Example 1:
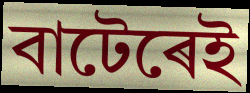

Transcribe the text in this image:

বাটেৰেই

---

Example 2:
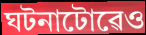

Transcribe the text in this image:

ঘটনাটোৱেও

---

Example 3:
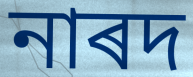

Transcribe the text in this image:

নাৰদ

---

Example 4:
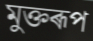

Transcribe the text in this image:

মুক্তৰূপ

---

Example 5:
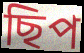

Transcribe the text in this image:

ছিপ